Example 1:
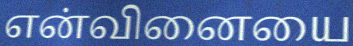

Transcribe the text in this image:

என்வினையை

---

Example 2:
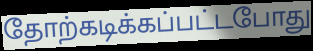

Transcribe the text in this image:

தோற்கடிக்கப்பட்டபோது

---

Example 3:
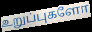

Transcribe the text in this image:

உறுப்புகளோ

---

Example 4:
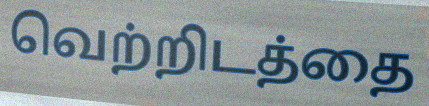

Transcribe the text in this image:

வெற்றிடத்தை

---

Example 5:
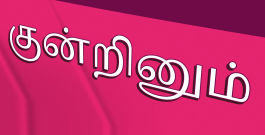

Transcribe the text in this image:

குன்றினும்